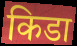
किडा